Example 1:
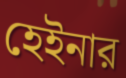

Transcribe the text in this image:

হেইনার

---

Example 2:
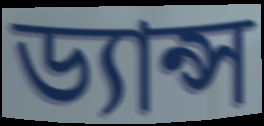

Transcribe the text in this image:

ড্যান্স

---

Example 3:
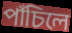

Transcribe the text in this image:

পাঁচিলে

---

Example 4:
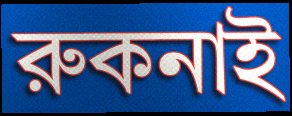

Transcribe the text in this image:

রুকনাই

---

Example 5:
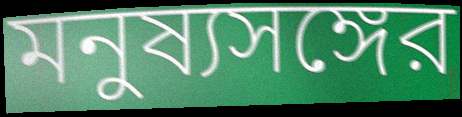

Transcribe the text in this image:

মনুষ্যসঙ্গের